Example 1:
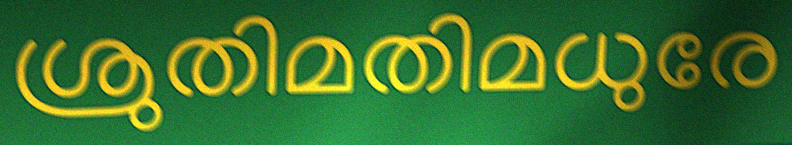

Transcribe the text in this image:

ശ്രുതിമതിമധുരേ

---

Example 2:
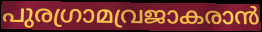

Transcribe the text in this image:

പുരഗ്രാമവ്രജാകരാൻ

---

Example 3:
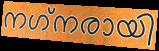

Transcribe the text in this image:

നഗ്‌നരായി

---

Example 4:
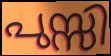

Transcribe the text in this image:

പുസ്സി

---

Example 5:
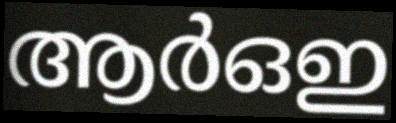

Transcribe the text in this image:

ആർഒഇ